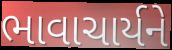
ભાવાચાર્યને